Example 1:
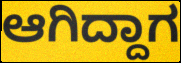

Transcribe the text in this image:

ಆಗಿದ್ದಾಗ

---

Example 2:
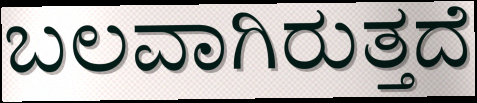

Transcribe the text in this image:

ಬಲವಾಗಿರುತ್ತದೆ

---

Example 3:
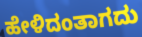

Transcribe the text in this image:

ಹೇಳಿದಂತಾಗದು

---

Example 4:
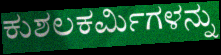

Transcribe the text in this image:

ಕುಶಲಕರ್ಮಿಗಳನ್ನು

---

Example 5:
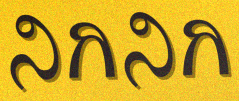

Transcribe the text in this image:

ನಿಗಿನಿಗಿ